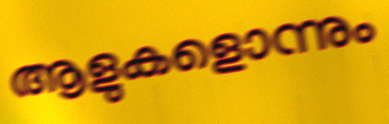
ആളുകളൊന്നും